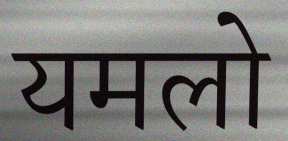
यमलो